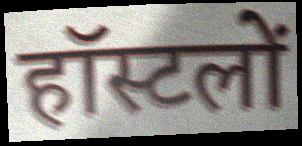
हॉस्टलों